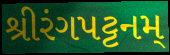
શ્રીરંગપટ્ટનમ્